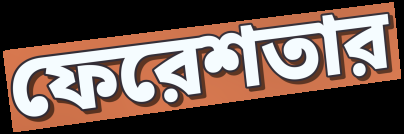
ফেরেশতার